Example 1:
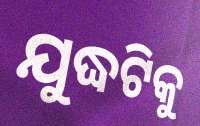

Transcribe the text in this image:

ଯୁଦ୍ଧଟିକୁ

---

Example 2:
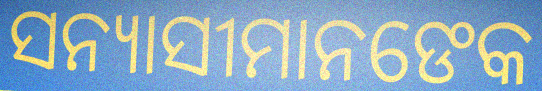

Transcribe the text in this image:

ସନ୍ୟାସୀମାନଙେକ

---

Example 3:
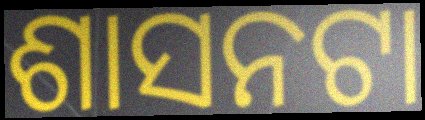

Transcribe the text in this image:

ଶାସନଟା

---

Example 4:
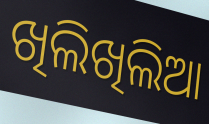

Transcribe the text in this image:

ଖିଲିଖିଲିଆ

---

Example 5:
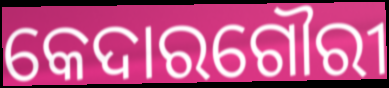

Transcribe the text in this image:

କେଦାରଗୌରୀ